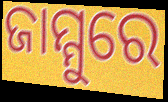
ଜାମ୍ମୁରେ